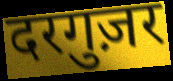
दरगुज़र